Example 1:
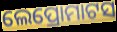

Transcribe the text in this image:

ଲେପ୍ରୋମାଟସ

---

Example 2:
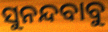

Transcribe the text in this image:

ସୁନନ୍ଦବାବୁ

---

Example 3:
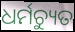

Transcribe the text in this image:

ଧର୍ମଚ୍ୟୁତ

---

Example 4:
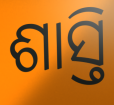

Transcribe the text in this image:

ଶାସ୍ତି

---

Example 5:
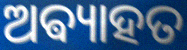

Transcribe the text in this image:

ଅଵ୍ୟାହତ